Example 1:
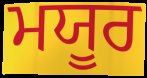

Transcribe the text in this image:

ਮਯੂਰ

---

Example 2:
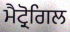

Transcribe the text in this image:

ਮੈਟ੍ਰੋਗਿਲ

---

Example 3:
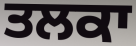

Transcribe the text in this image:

ਤਲਕਾ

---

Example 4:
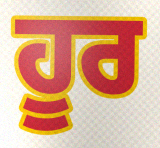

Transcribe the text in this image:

ਹੂਰ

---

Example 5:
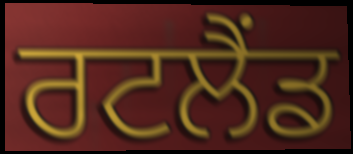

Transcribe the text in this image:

ਰਟਲੈਂਡ